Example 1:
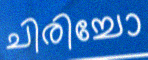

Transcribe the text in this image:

ചിരിച്ചോ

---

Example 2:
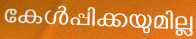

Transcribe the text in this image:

കേൾപ്പിക്കയുമില്ല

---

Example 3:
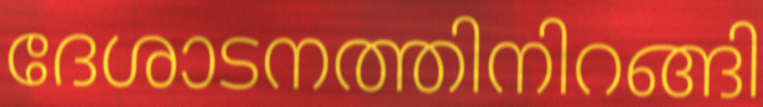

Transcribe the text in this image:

ദേശാടനത്തിനിറങ്ങി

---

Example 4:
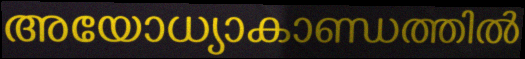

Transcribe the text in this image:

അയോധ്യാകാണ്ഡത്തിൽ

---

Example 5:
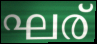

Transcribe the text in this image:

ഘര്